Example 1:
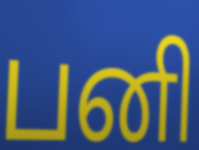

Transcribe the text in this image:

பனி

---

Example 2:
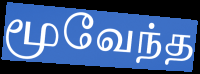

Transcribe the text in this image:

மூவேந்த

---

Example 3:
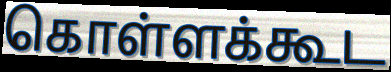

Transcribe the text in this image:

கொள்ளக்கூட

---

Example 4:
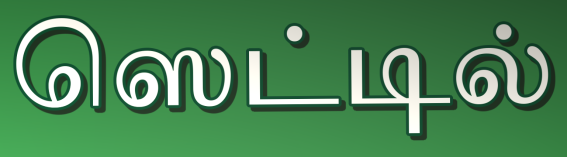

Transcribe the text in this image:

ஸெட்டில்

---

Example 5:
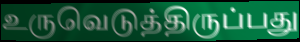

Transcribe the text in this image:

உருவெடுத்திருப்பது